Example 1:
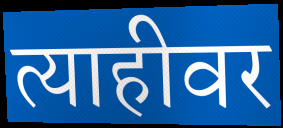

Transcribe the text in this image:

त्याहीवर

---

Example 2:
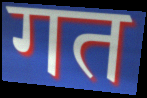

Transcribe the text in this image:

गत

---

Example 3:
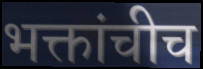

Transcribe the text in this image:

भक्तांचीच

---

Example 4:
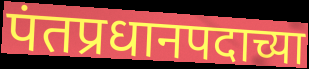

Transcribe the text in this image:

पंतप्रधानपदाच्या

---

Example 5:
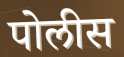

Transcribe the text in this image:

पोलीस